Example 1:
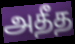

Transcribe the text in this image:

அதீத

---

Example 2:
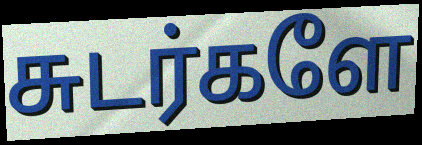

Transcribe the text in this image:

சுடர்களே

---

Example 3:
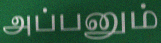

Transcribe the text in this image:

அப்பனும்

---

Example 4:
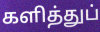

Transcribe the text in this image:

களித்துப்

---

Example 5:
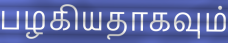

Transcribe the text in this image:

பழகியதாகவும்